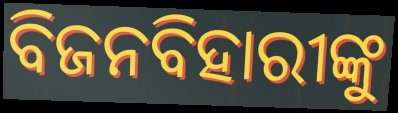
ବିଜନବିହାରୀଙ୍କୁ